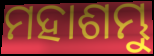
ମହାଶମ୍ଭୁ